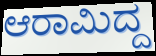
ಆರಾಮಿದ್ದ